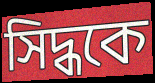
সিদ্ধকে